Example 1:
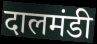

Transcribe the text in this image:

दालमंडी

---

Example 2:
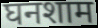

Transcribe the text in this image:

घनशाम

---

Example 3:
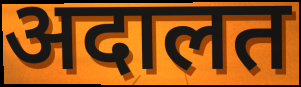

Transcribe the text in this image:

अदालत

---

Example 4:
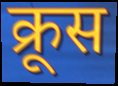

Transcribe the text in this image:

क्रूस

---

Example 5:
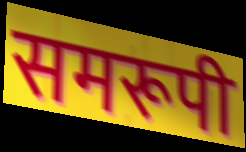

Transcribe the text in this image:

समरूपी